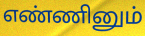
எண்ணினும்